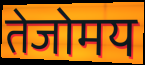
तेजोमय